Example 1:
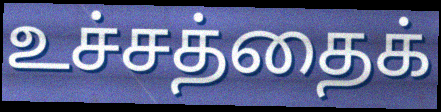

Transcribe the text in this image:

உச்சத்தைக்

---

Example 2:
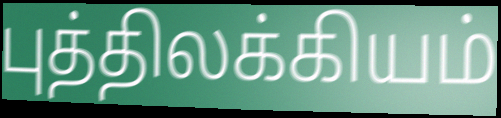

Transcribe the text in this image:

புத்திலக்கியம்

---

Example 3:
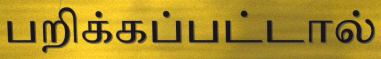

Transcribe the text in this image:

பறிக்கப்பட்டால்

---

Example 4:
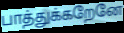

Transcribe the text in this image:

பாத்துக்கறேனே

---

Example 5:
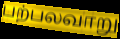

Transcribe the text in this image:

பற்பலவாறு